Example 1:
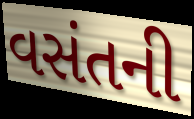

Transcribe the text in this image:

વસંતની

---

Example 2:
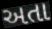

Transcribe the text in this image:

અતા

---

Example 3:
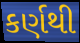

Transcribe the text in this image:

કર્ણથી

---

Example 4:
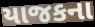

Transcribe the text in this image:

યાજકના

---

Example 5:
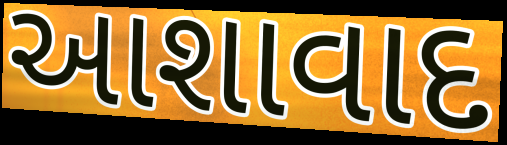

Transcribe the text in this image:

આશાવાદ